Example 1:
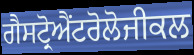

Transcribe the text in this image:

ਗੈਸਟ੍ਰੋਐਂਟਰੋਲੋਜੀਕਲ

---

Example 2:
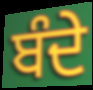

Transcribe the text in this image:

ਬੰਦੇ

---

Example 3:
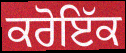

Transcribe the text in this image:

ਕਰੋਇੱਕ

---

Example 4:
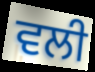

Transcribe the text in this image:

ਵਲੀ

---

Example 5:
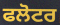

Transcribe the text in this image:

ਫਲੋਟਰ